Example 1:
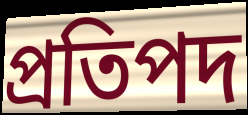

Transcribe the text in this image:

প্রতিপদ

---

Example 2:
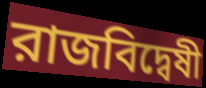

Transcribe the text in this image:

রাজবিদ্বেষী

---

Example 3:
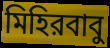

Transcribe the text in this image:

মিহিরবাবু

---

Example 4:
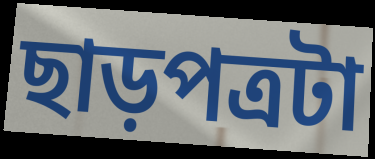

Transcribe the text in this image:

ছাড়পত্রটা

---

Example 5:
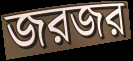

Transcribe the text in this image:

জরজর